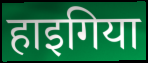
हाइगिया